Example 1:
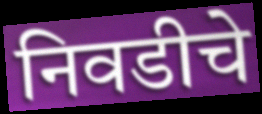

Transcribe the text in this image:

निवडीचे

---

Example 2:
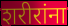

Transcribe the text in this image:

शरीरांना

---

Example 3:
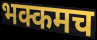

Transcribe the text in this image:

भक्कमच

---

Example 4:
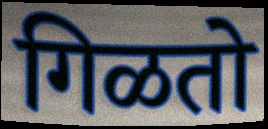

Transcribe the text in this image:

गिळतो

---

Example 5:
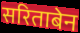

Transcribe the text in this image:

सरिताबेन